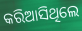
କରିଆସିଥିଲେ